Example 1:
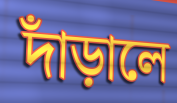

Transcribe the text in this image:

দাঁড়ালে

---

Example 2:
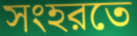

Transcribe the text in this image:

সংহরতে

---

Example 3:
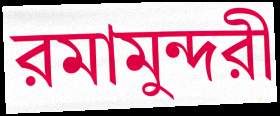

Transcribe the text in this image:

রমামুন্দরী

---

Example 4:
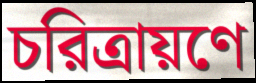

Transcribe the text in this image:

চরিত্রায়ণে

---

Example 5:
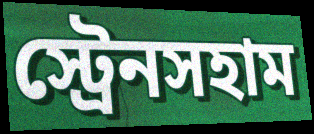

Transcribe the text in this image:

স্ট্রেনসহাম